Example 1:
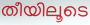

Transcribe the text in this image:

തീയിലൂടെ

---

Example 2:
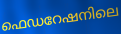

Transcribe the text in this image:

ഫെഡറേഷനിലെ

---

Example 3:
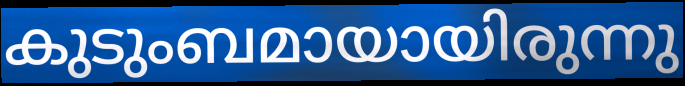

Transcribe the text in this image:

കുടുംബമായായിരുന്നു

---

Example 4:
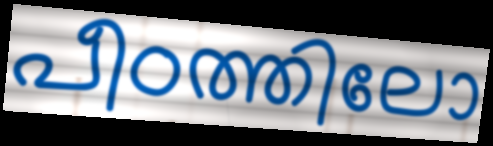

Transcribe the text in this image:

പീഠത്തിലോ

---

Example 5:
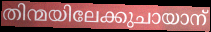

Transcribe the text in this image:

തിന്മയിലേക്കുചായാന്